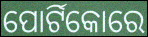
ପୋର୍ଟିକୋରେ